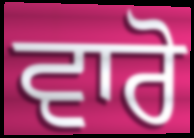
ਵਾਰੋ